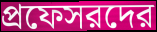
প্রফেসরদের